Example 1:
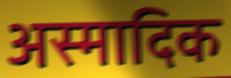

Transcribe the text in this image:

अस्मादिक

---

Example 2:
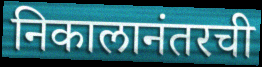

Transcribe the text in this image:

निकालानंतरची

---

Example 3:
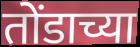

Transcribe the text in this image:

तोंडाच्या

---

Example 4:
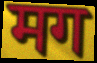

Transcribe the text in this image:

मग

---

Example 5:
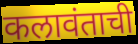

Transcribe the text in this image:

कलावंताची